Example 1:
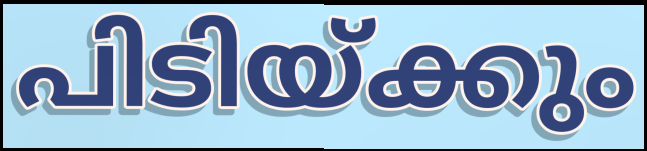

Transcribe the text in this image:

പിടിയ്ക്കും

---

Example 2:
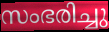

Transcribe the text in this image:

സംഭരിച്ചു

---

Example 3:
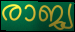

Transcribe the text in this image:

രാജ്യ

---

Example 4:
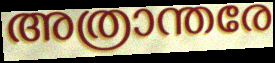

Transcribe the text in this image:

അത്രാന്തരേ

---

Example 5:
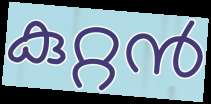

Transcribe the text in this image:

കുറ്റൻ